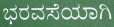
ಭರವಸೆಯಾಗಿ